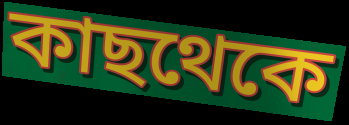
কাছথেকে